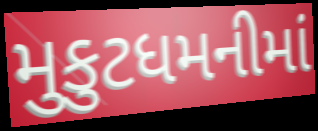
મુકુટધમનીમાં